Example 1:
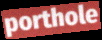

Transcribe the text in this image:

porthole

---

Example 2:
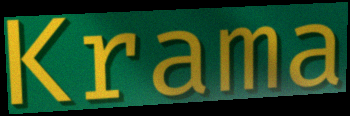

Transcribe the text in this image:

Krama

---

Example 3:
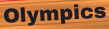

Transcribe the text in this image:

Olympics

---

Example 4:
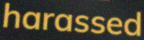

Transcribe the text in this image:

harassed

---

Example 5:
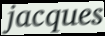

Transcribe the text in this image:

jacques